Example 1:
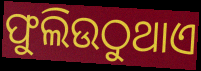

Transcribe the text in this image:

ଫୁଲିଉଠୁଥାଏ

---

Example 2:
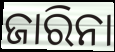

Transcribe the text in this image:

ଜାରିନା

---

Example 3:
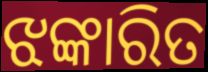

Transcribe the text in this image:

ଝଙ୍କାରିତ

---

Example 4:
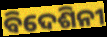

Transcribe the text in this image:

ବିଦେଶିନୀ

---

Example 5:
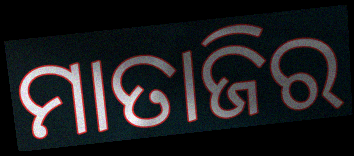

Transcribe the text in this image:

ମାତାଜିର